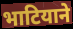
भाटियाने